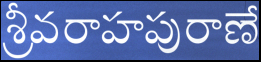
శ్రీవరాహపురాణే